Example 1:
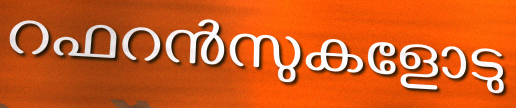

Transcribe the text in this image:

റഫറൻസുകളോടു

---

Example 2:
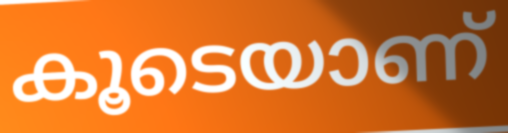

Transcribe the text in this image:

കൂടെയാണ്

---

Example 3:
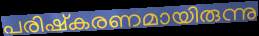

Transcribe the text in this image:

പരിഷ്കരണമായിരുന്നു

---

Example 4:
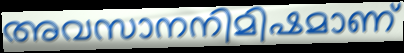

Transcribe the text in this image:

അവസാനനിമിഷമാണ്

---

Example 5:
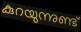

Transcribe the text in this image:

കുറയുന്നുണ്ട്